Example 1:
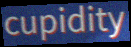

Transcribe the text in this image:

cupidity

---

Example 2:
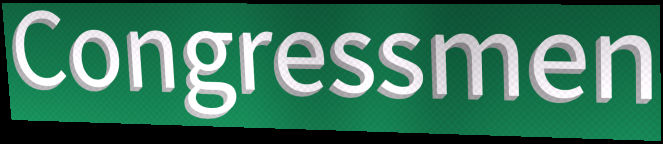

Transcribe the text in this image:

Congressmen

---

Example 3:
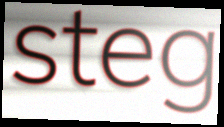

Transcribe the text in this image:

steg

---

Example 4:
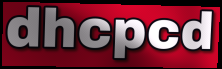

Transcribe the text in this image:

dhcpcd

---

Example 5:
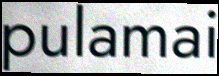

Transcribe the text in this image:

pulamai